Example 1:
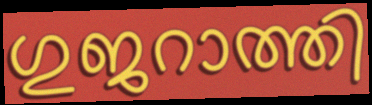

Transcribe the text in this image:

ഗുജറാത്തി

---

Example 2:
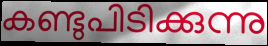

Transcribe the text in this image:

കണ്ടുപിടിക്കുന്നു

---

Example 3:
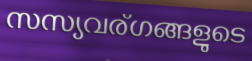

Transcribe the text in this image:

സസ്യവര്ഗങ്ങളുടെ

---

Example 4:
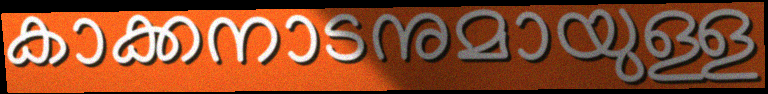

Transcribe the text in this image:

കാക്കനാടനുമായുള്ള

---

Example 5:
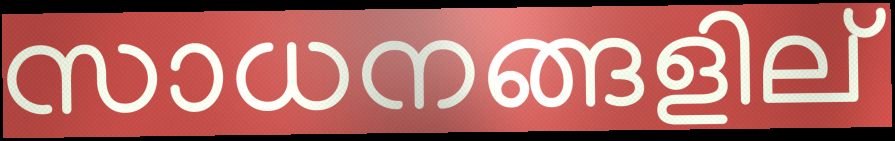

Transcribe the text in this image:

സാധനങ്ങളില്